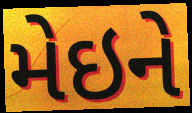
મેઇને